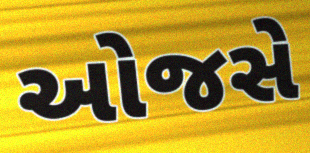
ઓજસે